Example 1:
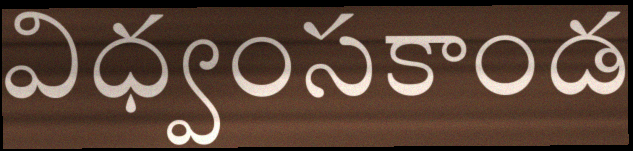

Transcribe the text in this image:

విధ్వంసకాండ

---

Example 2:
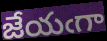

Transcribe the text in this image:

జేయఁగా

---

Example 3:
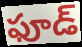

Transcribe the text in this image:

ఫూడ్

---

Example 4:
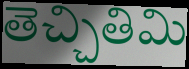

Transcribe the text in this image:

తెచ్చితిమి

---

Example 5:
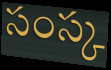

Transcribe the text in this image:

సంస్క